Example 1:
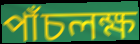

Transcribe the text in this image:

পাঁচলক্ষ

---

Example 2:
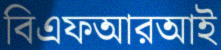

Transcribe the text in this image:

বিএফআরআই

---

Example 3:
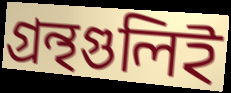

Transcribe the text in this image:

গ্রন্থগুলিই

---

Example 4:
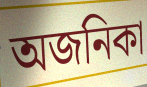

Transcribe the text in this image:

অজনিকা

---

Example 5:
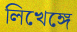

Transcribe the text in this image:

লিখেঙ্গে